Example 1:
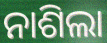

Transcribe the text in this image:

ନାଶିଲା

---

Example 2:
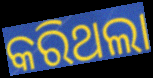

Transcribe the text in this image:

କରିଥଲା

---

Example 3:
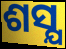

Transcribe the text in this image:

ଶସ୍ଯ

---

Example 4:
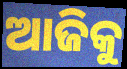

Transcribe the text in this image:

ଆଜିକୁ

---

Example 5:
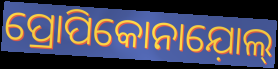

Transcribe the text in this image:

ପ୍ରୋପିକୋନାଯ଼ୋଲ୍